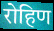
रोहिण